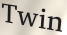
Twin